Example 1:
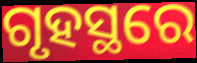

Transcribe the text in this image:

ଗୃହସ୍ଥରେ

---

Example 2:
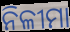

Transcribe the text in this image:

ନିଳୀମା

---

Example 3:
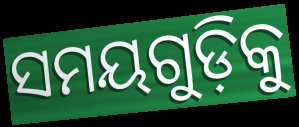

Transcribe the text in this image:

ସମୟଗୁଡ଼ିକୁ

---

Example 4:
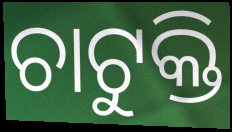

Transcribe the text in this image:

ଚାଟୁକ୍ତି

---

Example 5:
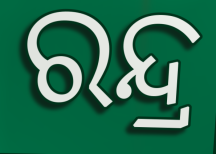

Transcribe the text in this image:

ରନ୍ଦ୍ର